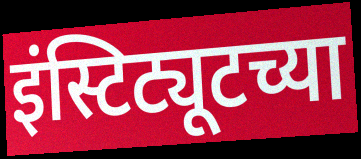
इंस्टिट्यूटच्या